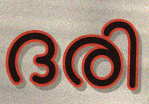
ദരി